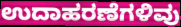
ಉದಾಹರಣೆಗಳಿವು